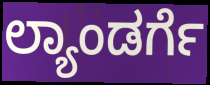
ಲ್ಯಾಂಡರ್ಗೆ